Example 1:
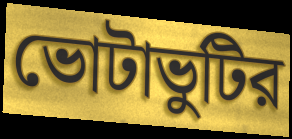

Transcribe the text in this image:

ভোটাভুটির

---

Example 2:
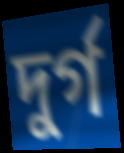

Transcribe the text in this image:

দুর্গ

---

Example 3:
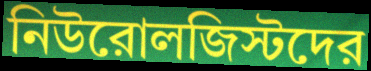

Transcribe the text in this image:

নিউরোলজিস্টদের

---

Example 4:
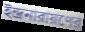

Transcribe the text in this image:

ইন্দ্রনারায়ণের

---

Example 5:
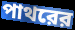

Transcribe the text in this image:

পাথরের